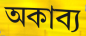
অকাব্য